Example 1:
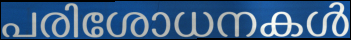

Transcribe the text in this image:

പരിശോധനകൾ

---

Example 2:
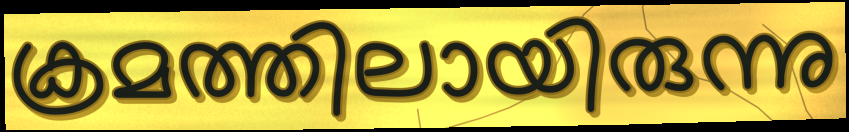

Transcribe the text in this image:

ക്രമത്തിലായിരുന്നു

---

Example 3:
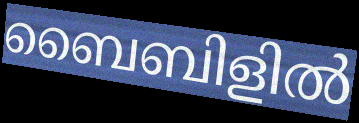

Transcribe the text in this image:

ബൈബിളിൽ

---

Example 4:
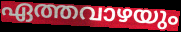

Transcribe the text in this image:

ഏത്തവാഴയും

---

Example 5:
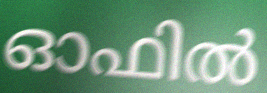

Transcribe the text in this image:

ഓഫിൽ